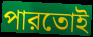
পারতোই